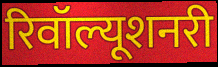
रिवॉल्यूशनरी